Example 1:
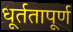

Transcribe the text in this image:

धूर्ततापूर्ण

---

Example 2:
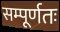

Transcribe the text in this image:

सम्पूर्णतः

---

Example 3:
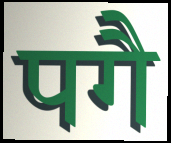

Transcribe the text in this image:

पगै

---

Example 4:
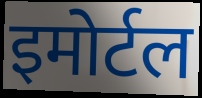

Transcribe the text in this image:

इमोर्टल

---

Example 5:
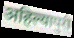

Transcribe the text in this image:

अहिल्यापुरी